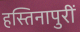
हस्तिनापुरीं